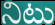
నిటు